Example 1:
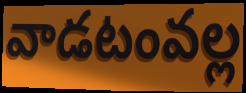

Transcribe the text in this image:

వాడటంవల్ల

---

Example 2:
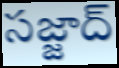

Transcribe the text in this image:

సజ్జాద్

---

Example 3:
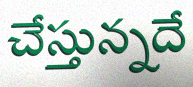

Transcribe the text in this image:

చేస్తున్నదే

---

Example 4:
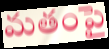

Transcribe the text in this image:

మతంపై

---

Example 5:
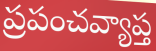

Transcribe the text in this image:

ప్రపంచవ్యాప్త